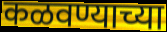
कळवण्याच्या